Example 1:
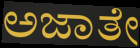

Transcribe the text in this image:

ಅಜಾತೇ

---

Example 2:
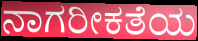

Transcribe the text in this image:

ನಾಗರೀಕತೆಯ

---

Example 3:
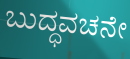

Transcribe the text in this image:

ಬುದ್ಧವಚನೇ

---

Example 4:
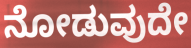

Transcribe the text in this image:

ನೋಡುವುದೇ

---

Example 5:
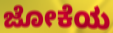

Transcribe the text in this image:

ಜೋಕೆಯ